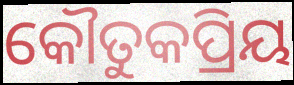
କୌତୁକପ୍ରିୟ